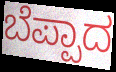
ಬೆಪ್ಪಾದ